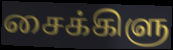
சைக்கிளு